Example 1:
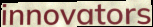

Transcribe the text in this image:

innovators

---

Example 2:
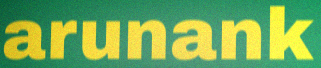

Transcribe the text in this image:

arunank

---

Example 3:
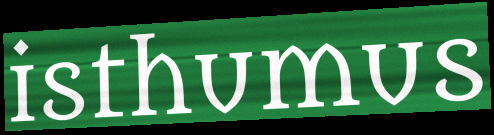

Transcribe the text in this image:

isthumus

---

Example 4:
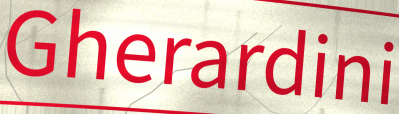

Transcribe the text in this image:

Gherardini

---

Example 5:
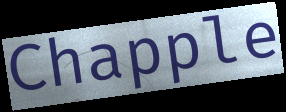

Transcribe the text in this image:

Chapple